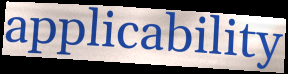
applicability